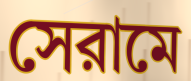
সেরামে